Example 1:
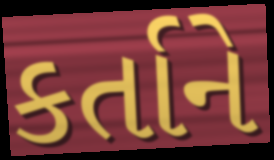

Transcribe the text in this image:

કર્તાને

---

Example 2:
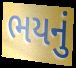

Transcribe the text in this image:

ભયનું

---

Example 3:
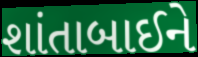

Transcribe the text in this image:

શાંતાબાઈને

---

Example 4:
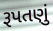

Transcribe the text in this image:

રૂપતણું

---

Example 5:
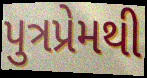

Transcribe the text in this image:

પુત્રપ્રેમથી